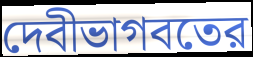
দেবীভাগবতের